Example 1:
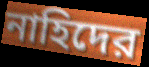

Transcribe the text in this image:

নাহিদের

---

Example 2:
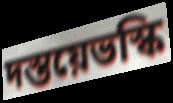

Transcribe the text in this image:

দস্তয়েভস্কি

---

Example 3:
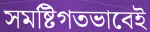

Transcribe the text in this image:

সমষ্টিগতভাবেই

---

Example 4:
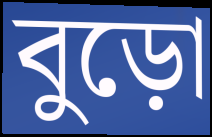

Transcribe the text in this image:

বুড়ো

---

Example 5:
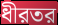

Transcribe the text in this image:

ধীরতর